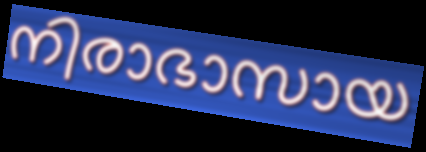
നിരാഭാസായ